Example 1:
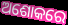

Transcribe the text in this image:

ଅଶୋକରେ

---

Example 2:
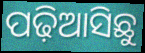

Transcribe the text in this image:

ପଢ଼ିଆସିଛୁ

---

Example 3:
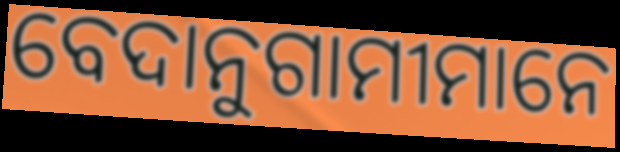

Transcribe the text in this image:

ବେଦାନୁଗାମୀମାନେ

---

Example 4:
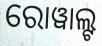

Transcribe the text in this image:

ରୋୱାଲ୍ଟ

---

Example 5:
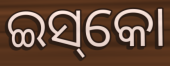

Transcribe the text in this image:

ଇସ୍‌କୋ